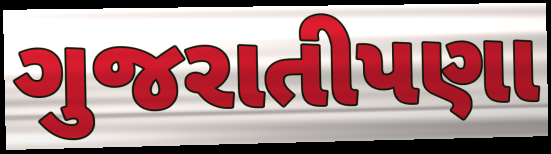
ગુજરાતીપણા